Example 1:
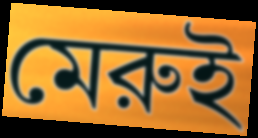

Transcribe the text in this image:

মেরুই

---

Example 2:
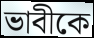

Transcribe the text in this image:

ভাবীকে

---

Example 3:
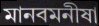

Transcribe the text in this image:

মানবমনীষা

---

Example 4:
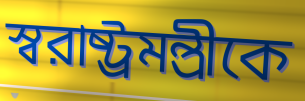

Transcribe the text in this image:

স্বরাষ্ট্রমন্ত্রীকে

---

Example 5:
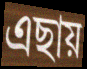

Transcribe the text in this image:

এছায়